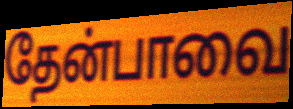
தேன்பாவை